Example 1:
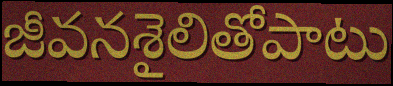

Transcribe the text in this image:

జీవనశైలితోపాటు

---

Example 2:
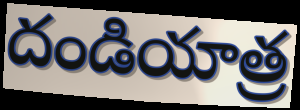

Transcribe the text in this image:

దండియాత్ర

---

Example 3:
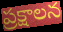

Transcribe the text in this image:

ప్రక్షాలన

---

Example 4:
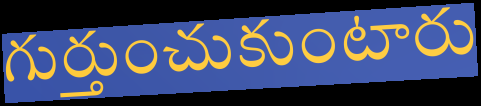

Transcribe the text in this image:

గుర్తుంచుకుంటారు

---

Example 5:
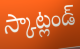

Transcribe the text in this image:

స్కాట్లండ్